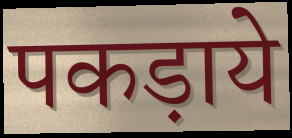
पकड़ाये